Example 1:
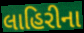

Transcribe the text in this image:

લાહિરીના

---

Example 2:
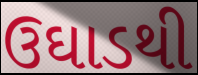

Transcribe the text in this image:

ઉઘાડથી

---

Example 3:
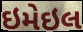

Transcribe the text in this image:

ઇમેઇલ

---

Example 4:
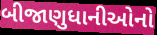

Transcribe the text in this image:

બીજાણુધાનીઓનો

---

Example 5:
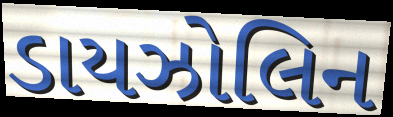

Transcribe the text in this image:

ડાયઝોલિન